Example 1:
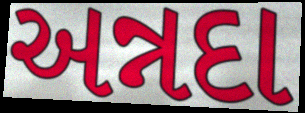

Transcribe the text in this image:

અન્નદા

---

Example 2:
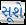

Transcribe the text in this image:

સૂશે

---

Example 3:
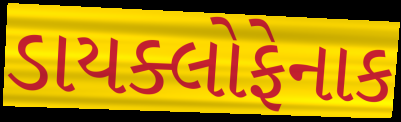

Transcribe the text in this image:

ડાયક્લોફેનાક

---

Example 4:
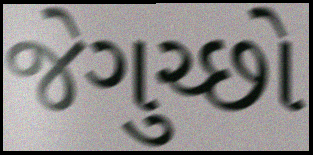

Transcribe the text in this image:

જેગુચ્છો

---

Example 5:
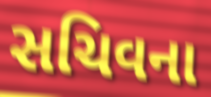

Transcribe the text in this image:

સચિવના